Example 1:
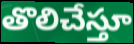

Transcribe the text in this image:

తొలిచేస్తూ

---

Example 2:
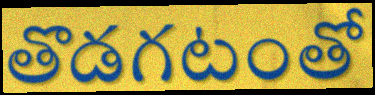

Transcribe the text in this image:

తొడగటంతో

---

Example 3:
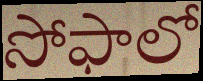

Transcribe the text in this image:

సోఫాలో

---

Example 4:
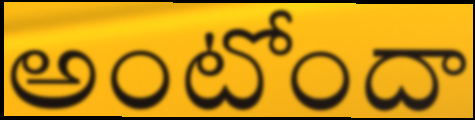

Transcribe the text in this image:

అంటోందా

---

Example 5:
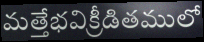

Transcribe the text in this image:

మత్తేభవిక్రీడితములో